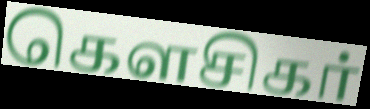
கௌசிகர்